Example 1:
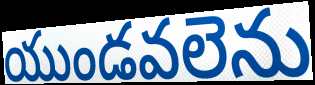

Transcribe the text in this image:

యుండవలెను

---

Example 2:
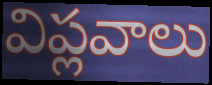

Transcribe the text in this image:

విప్లవాలు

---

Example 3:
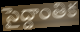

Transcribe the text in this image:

సైద్దాంతిక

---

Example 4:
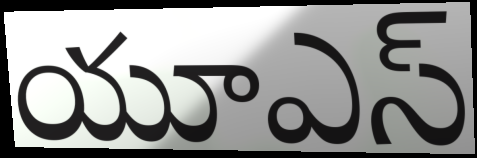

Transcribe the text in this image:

యూఎస్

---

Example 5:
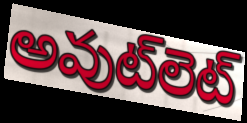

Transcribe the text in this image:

అవుట్‌లెట్